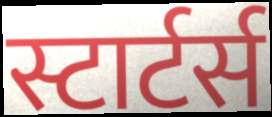
स्टार्टर्स